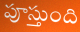
పూస్తుంది